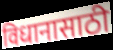
विधानासाठी